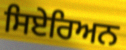
ਸਿਏਰਿਅਨ